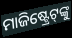
ମାଜିଷ୍ଟ୍ରେଟ୍‌ଙ୍କୁ